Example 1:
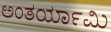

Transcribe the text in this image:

ಅಂತರ್ಯಾಮಿ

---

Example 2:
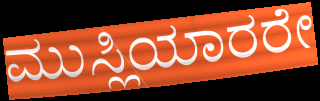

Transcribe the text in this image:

ಮುಸ್ಲಿಯಾರರೇ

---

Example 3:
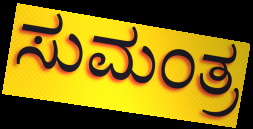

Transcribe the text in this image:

ಸುಮಂತ್ರ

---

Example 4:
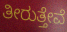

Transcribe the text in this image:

ತೀರುತ್ತೇವೆ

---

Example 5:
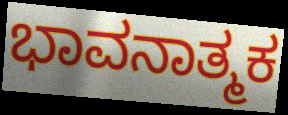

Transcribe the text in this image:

ಭಾವನಾತ್ಮಕ